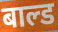
बाल्ड